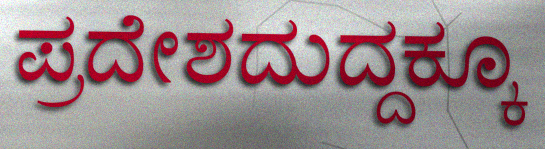
ಪ್ರದೇಶದುದ್ದಕ್ಕೂ